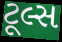
ટૂલ્સ